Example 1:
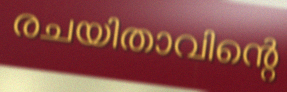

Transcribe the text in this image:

രചയിതാവിന്റെ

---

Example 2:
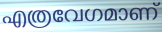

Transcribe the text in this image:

എത്രവേഗമാണ്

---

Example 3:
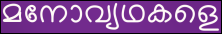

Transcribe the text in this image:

മനോവ്യഥകളെ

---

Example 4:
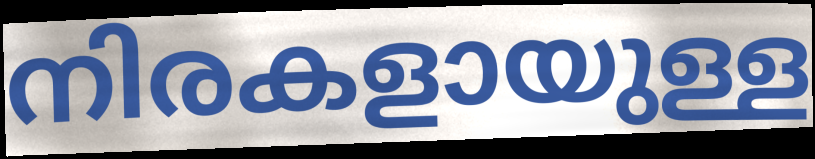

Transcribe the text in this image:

നിരകളായുള്ള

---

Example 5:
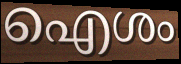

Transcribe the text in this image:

ഐശം